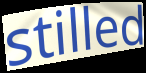
stilled